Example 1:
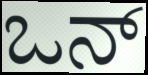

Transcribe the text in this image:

ಒನ್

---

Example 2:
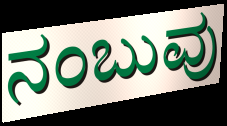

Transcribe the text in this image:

ನಂಬುವು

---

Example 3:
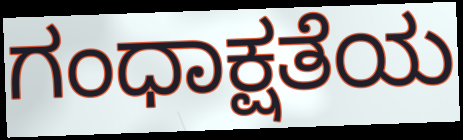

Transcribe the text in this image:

ಗಂಧಾಕ್ಷತೆಯ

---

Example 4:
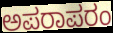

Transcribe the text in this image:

ಅಪರಾಪರಂ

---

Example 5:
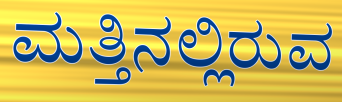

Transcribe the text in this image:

ಮತ್ತಿನಲ್ಲಿರುವ